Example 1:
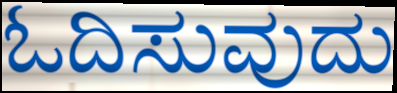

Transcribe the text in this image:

ಓದಿಸುವುದು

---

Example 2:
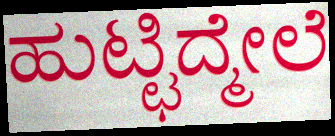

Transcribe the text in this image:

ಹುಟ್ಟಿದ್ಮೇಲೆ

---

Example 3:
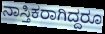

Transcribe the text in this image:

ನಾಸ್ತಿಕರಾಗಿದ್ದರೂ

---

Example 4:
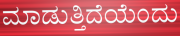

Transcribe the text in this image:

ಮಾಡುತ್ತಿದೆಯೆಂದು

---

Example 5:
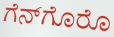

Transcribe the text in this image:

ಗೆನ್‌ಗೊರೊ